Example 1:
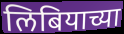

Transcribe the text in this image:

लिबियाच्या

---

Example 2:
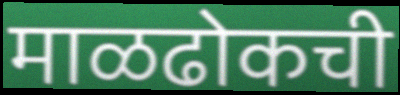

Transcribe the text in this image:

माळढोकची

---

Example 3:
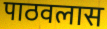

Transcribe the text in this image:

पाठवलास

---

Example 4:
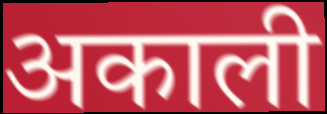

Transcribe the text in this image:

अकाली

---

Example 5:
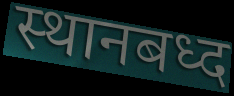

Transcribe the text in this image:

स्थानबध्द